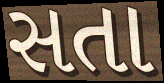
સતા